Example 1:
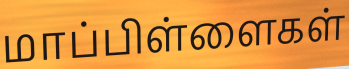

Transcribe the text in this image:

மாப்பிள்ளைகள்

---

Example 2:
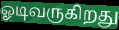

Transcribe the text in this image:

ஓடிவருகிறது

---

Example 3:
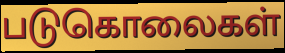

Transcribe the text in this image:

படுகொலைகள்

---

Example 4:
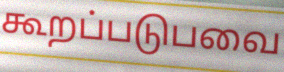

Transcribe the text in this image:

கூறப்படுபவை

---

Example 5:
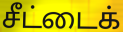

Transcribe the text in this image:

சீட்டைக்